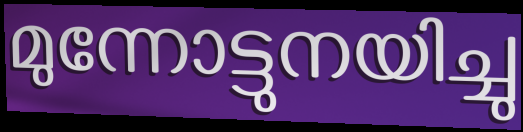
മുന്നോട്ടുനയിച്ചു